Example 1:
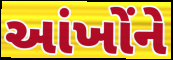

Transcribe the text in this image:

આંખોંને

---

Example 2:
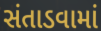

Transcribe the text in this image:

સંતાડવામાં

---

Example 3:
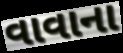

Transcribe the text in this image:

વાવાના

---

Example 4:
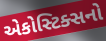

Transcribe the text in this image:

એકોસ્ટિક્સનો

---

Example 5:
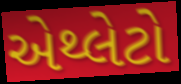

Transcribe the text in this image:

એથ્લેટો